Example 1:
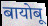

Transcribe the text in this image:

बायोबू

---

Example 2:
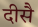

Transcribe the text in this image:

दीसै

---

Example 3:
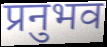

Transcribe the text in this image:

प्रनुभव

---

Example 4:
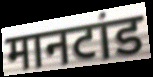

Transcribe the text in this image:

मानटांड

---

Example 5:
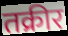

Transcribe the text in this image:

तक्रीर